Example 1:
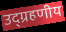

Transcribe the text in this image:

उद्ग्रहणीय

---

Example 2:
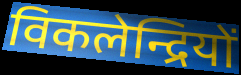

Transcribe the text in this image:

विकलेन्द्रियों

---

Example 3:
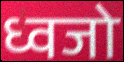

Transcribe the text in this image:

ध्वजो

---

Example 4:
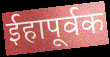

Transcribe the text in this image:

ईहापूर्वक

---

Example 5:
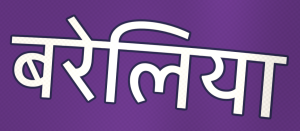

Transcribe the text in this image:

बरेलिया